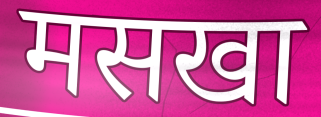
मसखा